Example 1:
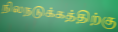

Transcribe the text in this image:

நிலநடுக்கத்திற்கு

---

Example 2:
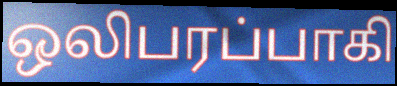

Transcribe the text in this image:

ஒலிபரப்பாகி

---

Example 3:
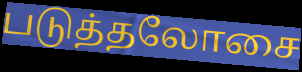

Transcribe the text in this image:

படுத்தலோசை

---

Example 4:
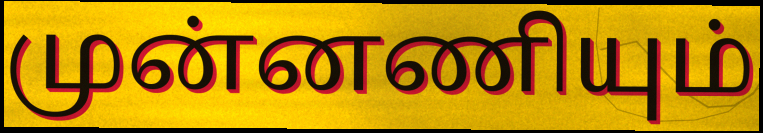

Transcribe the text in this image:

முன்னணியும்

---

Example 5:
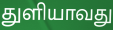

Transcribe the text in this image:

துளியாவது